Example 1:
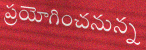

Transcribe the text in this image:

ప్రయోగించనున్న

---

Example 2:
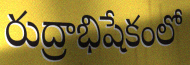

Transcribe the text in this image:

రుద్రాభిషేకంలో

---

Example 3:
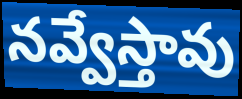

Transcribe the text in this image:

నవ్వేస్తావు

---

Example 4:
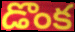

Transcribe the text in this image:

డొంక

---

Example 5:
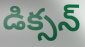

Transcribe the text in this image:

డిక్సన్